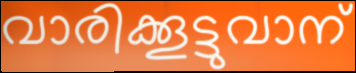
വാരിക്കൂട്ടുവാന്